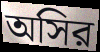
অসির